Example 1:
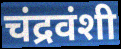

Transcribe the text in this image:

चंद्रवंशी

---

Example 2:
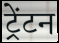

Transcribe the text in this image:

ट्रेंटन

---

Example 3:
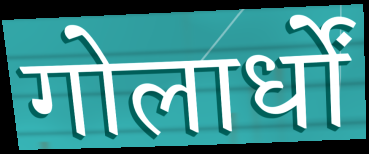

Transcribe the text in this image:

गोलार्धों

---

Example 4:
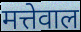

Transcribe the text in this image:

मत्तेवाल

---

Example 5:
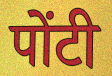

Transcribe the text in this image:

पोंटी